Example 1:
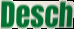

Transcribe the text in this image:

Desch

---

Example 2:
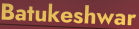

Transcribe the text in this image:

Batukeshwar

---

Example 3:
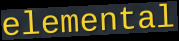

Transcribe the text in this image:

elemental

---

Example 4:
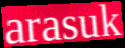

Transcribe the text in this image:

arasuk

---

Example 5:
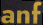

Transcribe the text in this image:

anf